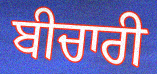
ਬੀਚਾਰੀ